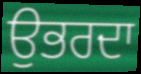
ਉਭਰਦਾ